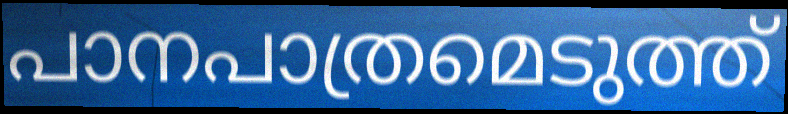
പാനപാത്രമെടുത്ത്